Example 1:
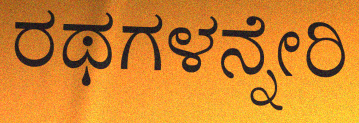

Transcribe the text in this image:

ರಥಗಳನ್ನೇರಿ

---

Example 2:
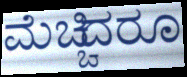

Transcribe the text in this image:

ಮೆಚ್ಚಿದರೂ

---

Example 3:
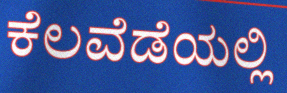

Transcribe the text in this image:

ಕೆಲವೆಡೆಯಲ್ಲಿ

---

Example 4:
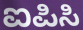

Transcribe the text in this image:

ಐಪಿಸಿ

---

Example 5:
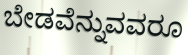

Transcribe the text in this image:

ಬೇಡವೆನ್ನುವವರೂ